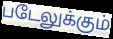
படேலுக்கும்